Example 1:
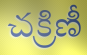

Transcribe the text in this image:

చక్రిణీ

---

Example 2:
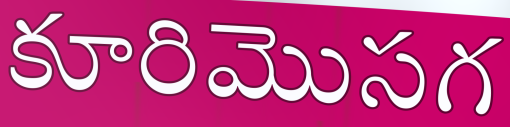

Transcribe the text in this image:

కూరిమొసగ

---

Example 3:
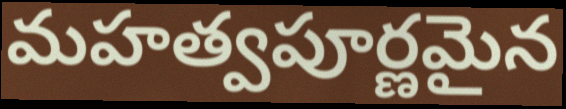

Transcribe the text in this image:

మహత్వపూర్ణమైన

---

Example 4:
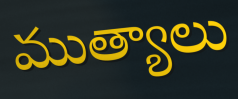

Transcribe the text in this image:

ముత్యాలు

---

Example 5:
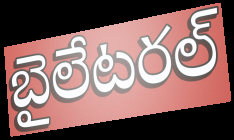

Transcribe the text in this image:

బైలేటరల్